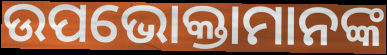
ଉପଭୋକ୍ତାମାନଙ୍କ